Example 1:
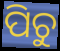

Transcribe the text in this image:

ପିଚୁ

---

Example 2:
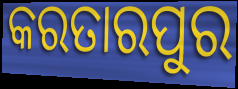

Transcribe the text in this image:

କରତାରପୁର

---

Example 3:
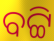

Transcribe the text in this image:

ବଟ୍ଟି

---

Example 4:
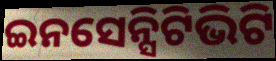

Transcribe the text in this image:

ଇନସେନ୍ସିଟିଭିଟି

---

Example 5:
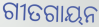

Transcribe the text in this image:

ଗୀତଗାୟନ